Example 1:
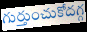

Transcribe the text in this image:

గుర్తుంచుకోదగ్గ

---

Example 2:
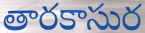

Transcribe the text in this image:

తారకాసుర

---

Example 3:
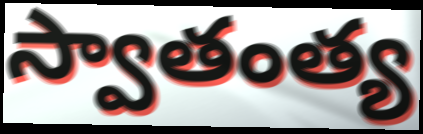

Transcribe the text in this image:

స్వాతంత్య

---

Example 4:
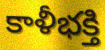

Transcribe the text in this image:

కాళీభక్తి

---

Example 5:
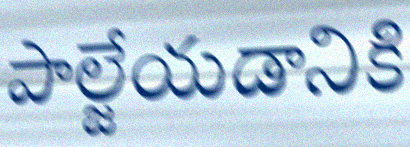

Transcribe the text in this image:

పాల్జేయడానికి